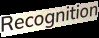
Recognition